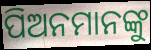
ପିଅନମାନଙ୍କୁ